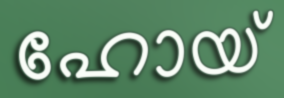
ഹോയ്